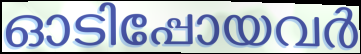
ഓടിപ്പോയവർ